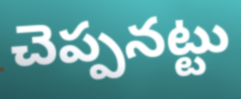
చెప్పనట్టు